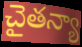
చైతన్యా